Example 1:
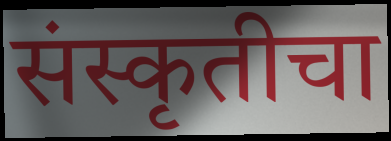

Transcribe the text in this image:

संस्कृतीचा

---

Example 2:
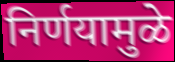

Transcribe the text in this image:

निर्णयामुळे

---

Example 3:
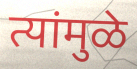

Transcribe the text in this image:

त्यांमुळे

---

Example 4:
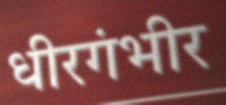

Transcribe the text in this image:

धीरगंभीर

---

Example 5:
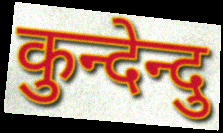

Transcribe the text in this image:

कुन्देन्दु